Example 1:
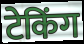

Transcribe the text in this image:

टेकिंग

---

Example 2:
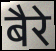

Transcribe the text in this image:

बैरे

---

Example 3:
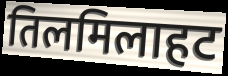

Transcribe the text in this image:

तिलमिलाहट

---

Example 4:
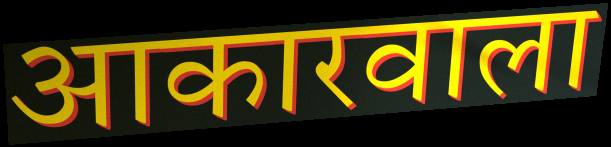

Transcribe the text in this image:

आकारवाला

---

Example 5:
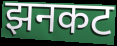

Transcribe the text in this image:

झनकट